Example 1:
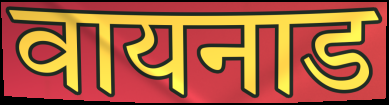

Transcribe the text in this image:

वायनाड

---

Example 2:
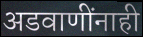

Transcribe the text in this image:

अडवाणींनाही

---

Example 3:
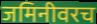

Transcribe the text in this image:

जमिनीवरच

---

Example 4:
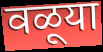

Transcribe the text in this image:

वळूया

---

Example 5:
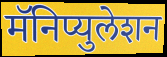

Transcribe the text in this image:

मॅनिप्युलेशन